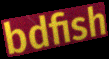
bdfish